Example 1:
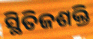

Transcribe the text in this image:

ସ୍ଥିତିଜଶକ୍ତି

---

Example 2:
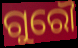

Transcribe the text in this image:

ଗୁରୌ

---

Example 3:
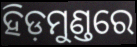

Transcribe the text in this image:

ହିଡ଼ମୁଣ୍ଡରେ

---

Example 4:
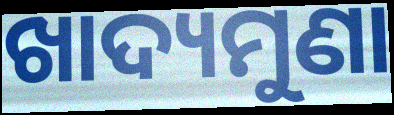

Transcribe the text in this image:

ଖାଦ୍ୟମୁଣା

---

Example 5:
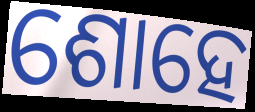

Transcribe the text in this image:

ଶୋହେ